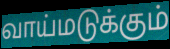
வாய்மடுக்கும்